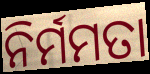
ନିର୍ମମତା